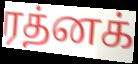
ரத்னக்